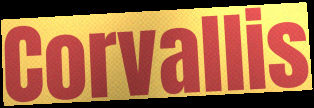
Corvallis